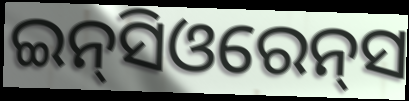
ଇନ୍‌ସିଓରେନ୍‌ସ